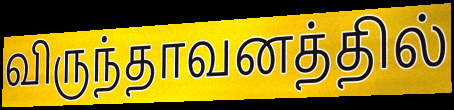
விருந்தாவனத்தில்